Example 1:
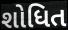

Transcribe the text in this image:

શોધિત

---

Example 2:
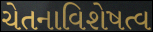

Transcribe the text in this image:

ચેતનાવિશેષત્વ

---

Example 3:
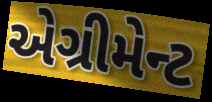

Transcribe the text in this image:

એગ્રીમેન્ટ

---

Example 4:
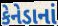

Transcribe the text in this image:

કેનેડાનાં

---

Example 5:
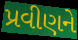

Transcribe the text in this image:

પ્રવીણને